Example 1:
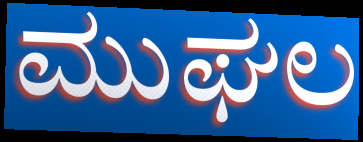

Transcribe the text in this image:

ಮುಘಲ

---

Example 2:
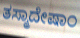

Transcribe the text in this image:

ತಸ್ಮಾದೇಷಾಂ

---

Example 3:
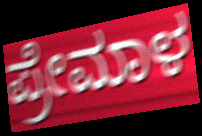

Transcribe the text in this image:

ಪ್ರೇಮಾಳ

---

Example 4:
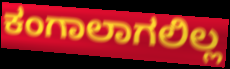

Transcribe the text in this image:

ಕಂಗಾಲಾಗಲಿಲ್ಲ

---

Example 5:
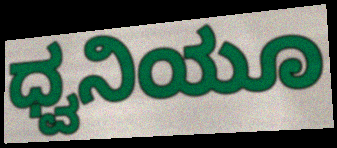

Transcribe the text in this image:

ಧ್ವನಿಯೂ